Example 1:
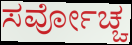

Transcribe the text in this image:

ಸರ್ವೋಚ್ಚ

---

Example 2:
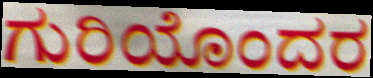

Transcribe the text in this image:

ಗುರಿಯೊಂದರ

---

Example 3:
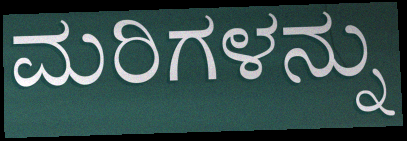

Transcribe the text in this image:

ಮರಿಗಳನ್ನು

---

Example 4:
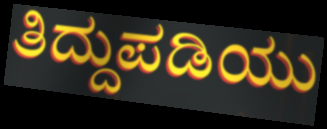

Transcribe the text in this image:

ತಿದ್ದುಪಡಿಯು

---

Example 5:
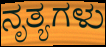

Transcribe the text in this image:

ನೃತ್ಯಗಳು